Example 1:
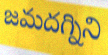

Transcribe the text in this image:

జమదగ్నిని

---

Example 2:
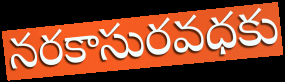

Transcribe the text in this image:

నరకాసురవధకు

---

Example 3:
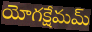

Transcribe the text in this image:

యోగక్షేమమ్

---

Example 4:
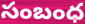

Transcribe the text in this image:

సంబంధ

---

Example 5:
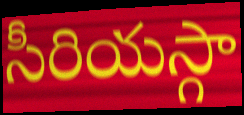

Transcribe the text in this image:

సీరియస్గా